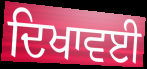
ਦਿਖਾਵਈ